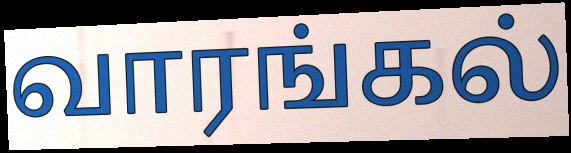
வாரங்கல்